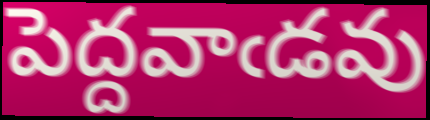
పెద్దవాఁడవు